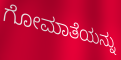
ಗೋಮಾತೆಯನ್ನು